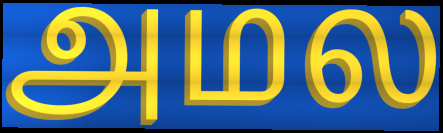
அமல